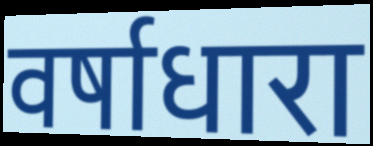
वर्षाधारा